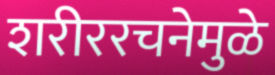
शरीररचनेमुळे